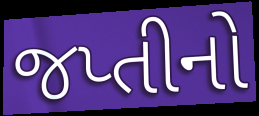
જપ્તીનો